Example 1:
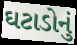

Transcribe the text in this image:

ઘટાડોનું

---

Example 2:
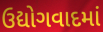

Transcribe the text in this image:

ઉદ્યોગવાદમાં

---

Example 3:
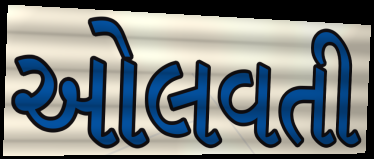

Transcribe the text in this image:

ઓલવતી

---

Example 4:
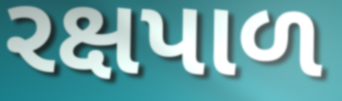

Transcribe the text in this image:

રક્ષપાળ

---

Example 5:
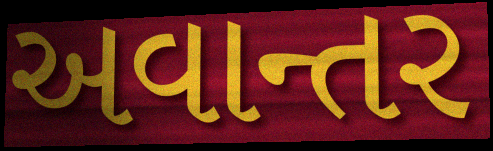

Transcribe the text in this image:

અવાન્તર